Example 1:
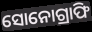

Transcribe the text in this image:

ସୋନୋଗ୍ରାଫି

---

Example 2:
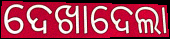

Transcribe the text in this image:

ଦେଖାଦେଲା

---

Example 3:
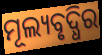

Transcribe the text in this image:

ମୂଲ୍ୟବୃଦ୍ଧିର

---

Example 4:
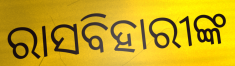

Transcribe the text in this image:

ରାସବିହାରୀଙ୍କ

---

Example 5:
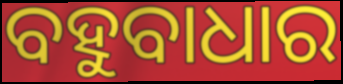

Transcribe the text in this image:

ବହୁବାଧାର